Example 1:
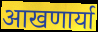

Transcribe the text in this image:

आखणार्या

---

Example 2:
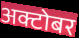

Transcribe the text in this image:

अक्टोबर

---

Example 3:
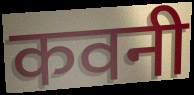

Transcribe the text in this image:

कवनी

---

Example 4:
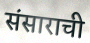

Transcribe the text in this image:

संसाराची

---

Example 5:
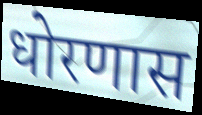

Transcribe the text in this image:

धोरणास